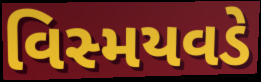
વિસ્મયવડે